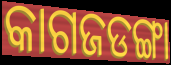
କାଗଜଡଙ୍ଗା